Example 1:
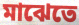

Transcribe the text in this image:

মাঝেতে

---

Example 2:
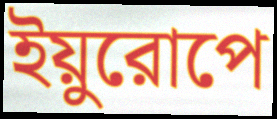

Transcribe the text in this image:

ইয়ুরোপে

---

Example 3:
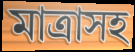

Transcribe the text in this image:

মাত্রাসহ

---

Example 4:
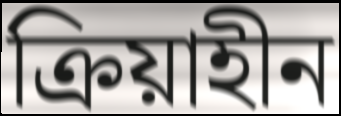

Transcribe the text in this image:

ক্রিয়াহীন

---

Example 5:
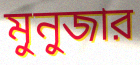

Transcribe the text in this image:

মুনুজার